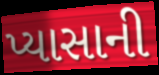
પ્યાસાની